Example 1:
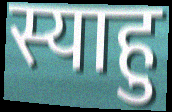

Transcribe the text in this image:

स्याहु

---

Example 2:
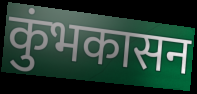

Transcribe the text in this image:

कुंभकासन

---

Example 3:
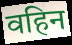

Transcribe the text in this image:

वहिन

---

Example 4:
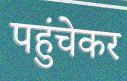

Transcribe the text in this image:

पहुंचेकर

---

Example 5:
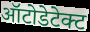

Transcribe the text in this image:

ऑटोडेटेक्ट